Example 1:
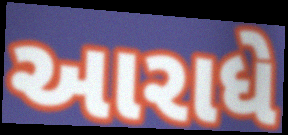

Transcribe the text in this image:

આરાધે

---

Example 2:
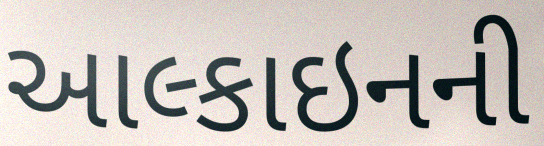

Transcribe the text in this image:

આલ્કાઇનની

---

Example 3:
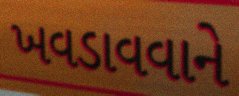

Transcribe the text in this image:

ખવડાવવાને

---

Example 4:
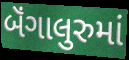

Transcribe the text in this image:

બૅંગાલુરુમાં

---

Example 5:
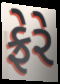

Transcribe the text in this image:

ફ્રેરે